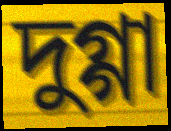
দুগ্গা